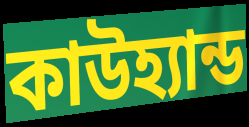
কাউহ্যান্ড